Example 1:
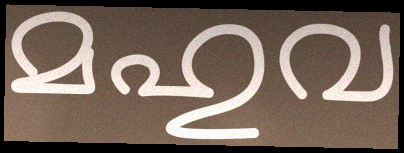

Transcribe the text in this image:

മഹുവ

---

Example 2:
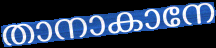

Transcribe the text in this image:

താനാകാനേ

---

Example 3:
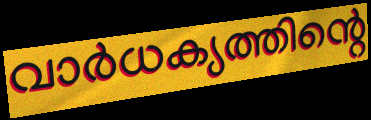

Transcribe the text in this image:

വാർധക്യത്തിന്റെ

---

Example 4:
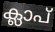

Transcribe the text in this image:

ക്ലാപ്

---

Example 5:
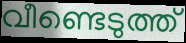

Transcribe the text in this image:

വീണ്ടെടുത്ത്